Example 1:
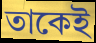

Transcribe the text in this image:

তাকেই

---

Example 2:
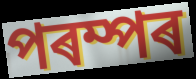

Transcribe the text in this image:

পৰম্পৰ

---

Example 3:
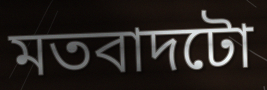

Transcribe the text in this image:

মতবাদটো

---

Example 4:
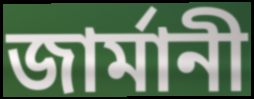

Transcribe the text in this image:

জাৰ্মানী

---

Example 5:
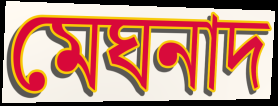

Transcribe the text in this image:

মেঘনাদ